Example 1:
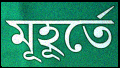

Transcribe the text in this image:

মূহূর্তে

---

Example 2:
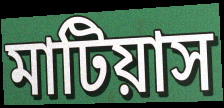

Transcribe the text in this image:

মাটিয়াস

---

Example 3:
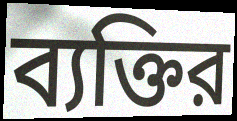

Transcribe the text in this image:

ব্যক্তির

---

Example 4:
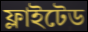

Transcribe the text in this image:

ফ্লাইটেড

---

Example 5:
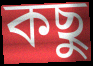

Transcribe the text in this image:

কছু